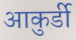
आकुर्डी